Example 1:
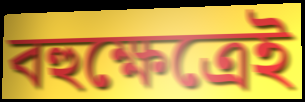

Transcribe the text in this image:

বহুক্ষেত্রেই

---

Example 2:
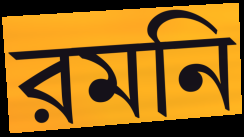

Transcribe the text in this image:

রমনি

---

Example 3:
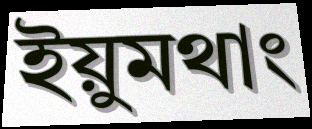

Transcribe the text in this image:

ইয়ুমথাং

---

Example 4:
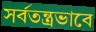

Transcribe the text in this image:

সর্বতন্ত্রভাবে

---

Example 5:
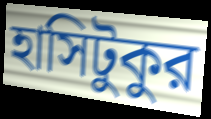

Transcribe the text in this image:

হাসিটুকুর